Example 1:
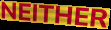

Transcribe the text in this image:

NEITHER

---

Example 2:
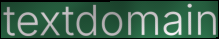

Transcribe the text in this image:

textdomain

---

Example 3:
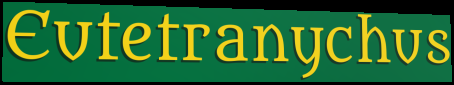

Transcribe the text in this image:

Eutetranychus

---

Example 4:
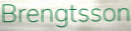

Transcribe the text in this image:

Brengtsson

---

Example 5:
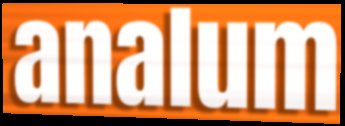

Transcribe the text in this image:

analum